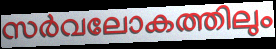
സർവലോകത്തിലും